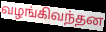
வழங்கிவந்தன